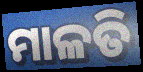
ମାଳତି